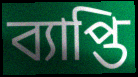
ব্যাপ্তি